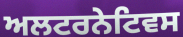
ਅਲਟਰਨੇਟਿਵਸ